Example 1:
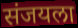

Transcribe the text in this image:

संजयला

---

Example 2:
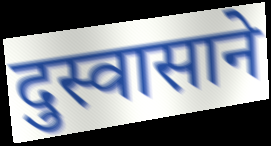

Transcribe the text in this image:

दुस्वासाने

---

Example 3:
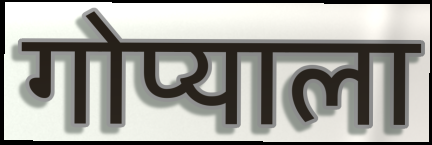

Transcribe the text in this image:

गोप्याला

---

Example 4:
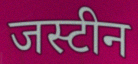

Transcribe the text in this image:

जस्टीन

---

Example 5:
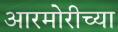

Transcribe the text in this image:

आरमोरीच्या